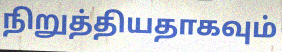
நிறுத்தியதாகவும்